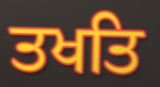
ਤਖਤਿ